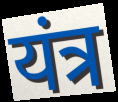
यंत्र